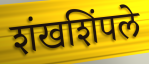
शंखशिंपले